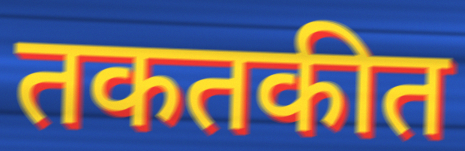
तकतकीत